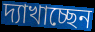
দ্যাখাচ্ছেন